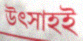
উৎসাহই